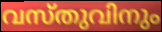
വസ്തുവിനും